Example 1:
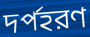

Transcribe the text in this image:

দর্পহরণ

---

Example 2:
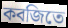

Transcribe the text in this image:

কবজিতে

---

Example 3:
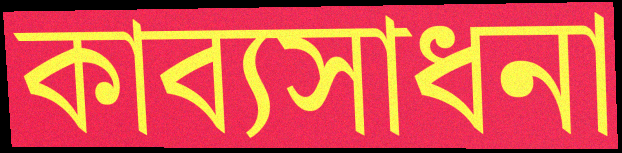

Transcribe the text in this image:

কাব্যসাধনা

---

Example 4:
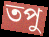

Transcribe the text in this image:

তপু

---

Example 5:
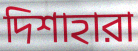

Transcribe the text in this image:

দিশাহারা